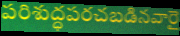
పరిశుద్ధపరచబడినవారై